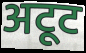
अटूट